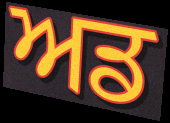
ਅਡ